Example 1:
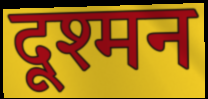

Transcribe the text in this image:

दूश्मन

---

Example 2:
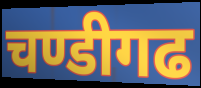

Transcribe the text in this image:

चण्डीगढ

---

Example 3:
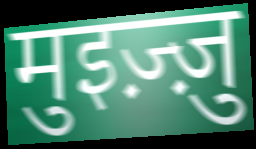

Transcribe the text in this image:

मुइज़्ज़ु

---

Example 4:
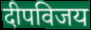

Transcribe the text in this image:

दीपविजय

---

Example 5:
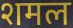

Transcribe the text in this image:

शमल